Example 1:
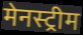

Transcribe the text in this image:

मेनस्ट्रीम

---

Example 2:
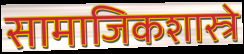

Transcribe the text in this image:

सामाजिकशास्त्रे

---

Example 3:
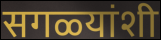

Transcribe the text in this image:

सगळ्यांशी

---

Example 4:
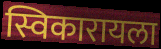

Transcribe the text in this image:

स्विकारायला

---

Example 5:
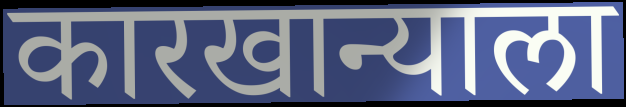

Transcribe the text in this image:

कारखान्याला